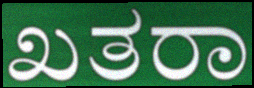
ಖತರಾ